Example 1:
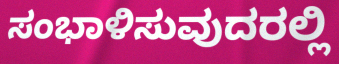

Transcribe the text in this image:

ಸಂಭಾಳಿಸುವುದರಲ್ಲಿ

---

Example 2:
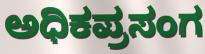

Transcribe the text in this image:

ಅಧಿಕಪ್ರಸಂಗ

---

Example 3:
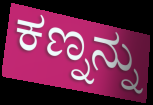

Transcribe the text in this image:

ಕಣ್ನನ್ನು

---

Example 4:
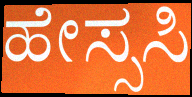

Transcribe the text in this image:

ಹೇಸ್ಸಸಿ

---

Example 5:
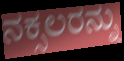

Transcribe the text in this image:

ನಕ್ಸಲರನ್ನು